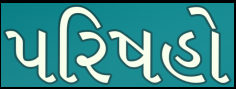
પરિષહો